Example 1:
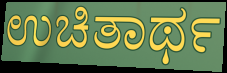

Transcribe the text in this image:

ಉಚಿತಾರ್ಥ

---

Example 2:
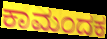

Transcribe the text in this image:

ಕಾಮಂದಕ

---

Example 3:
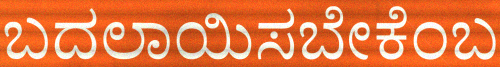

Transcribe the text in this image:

ಬದಲಾಯಿಸಬೇಕೆಂಬ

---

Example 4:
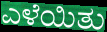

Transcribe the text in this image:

ಎಳೆಯಿತು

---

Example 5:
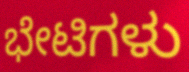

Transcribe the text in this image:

ಭೇಟಿಗಳು